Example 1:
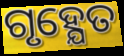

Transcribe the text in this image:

ଗୃହ୍ଯେତ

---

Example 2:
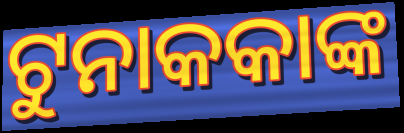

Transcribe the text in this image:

ଟୁନାକକାଙ୍କ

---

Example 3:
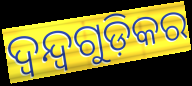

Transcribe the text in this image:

ଦ୍ୱନ୍ଦ୍ୱଗୁଡ଼ିକର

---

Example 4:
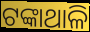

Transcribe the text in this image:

ଟଙ୍କାଥାଳି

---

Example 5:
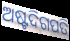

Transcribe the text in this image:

ଅଷ୍ଟଦିଗପତି